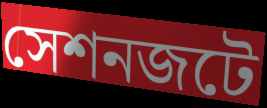
সেশনজটে